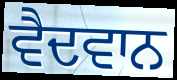
ਵੈਦਵਾਨ